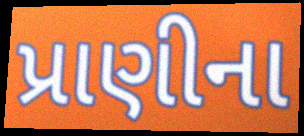
પ્રાણીના